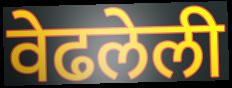
वेढलेली